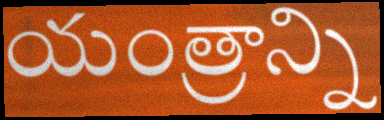
యంత్రాన్ని